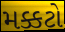
મક્કટો